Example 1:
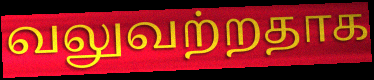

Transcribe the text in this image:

வலுவற்றதாக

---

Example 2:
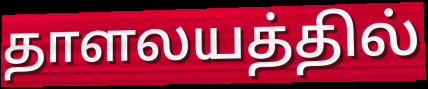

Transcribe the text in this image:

தாளலயத்தில்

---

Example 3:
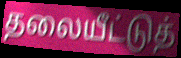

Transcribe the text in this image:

தலையீட்டுத்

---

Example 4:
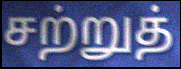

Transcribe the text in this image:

சற்றுத்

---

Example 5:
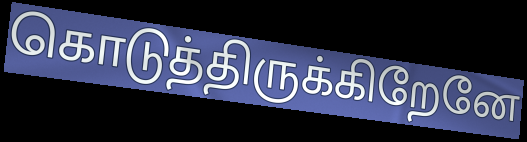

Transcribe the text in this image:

கொடுத்திருக்கிறேனே